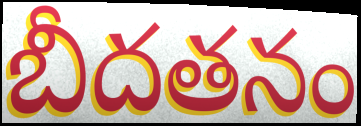
బీదతనం